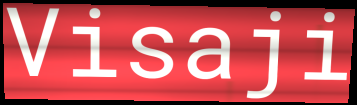
Visaji